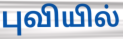
புவியில்